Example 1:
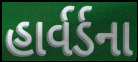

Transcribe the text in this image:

હાર્વર્ડના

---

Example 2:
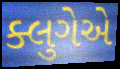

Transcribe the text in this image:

ક્લુગેએ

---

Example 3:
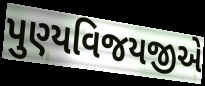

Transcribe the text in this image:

પુણ્યવિજયજીએ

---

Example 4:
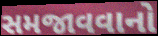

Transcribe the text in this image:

સમજાવવાનો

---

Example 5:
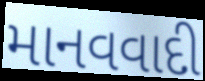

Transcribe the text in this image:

માનવવાદી